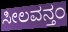
ಸೀಲವನ್ತಂ